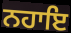
ਨਹਾਇ